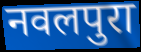
नवलपुरा